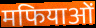
मफियाओं